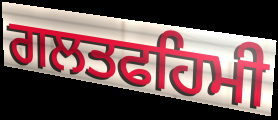
ਗਲਤਫਹਿਮੀ